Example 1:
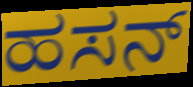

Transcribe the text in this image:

ಹಸನ್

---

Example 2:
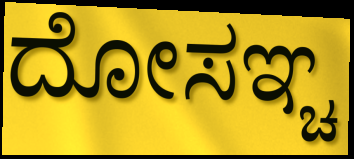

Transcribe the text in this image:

ದೋಸಞ್ಚ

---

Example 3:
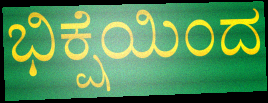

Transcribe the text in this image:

ಭಿಕ್ಷೆಯಿಂದ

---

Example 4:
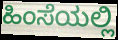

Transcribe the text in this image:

ಹಿಂಸೆಯಲ್ಲಿ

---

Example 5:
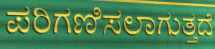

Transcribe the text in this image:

ಪರಿಗಣಿಸಲಾಗುತ್ತದೆ